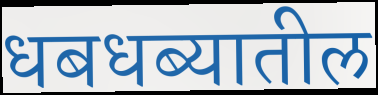
धबधब्यातील